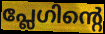
പ്ലേഗിന്റെ